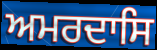
ਅਮਰਦਾਸਿ